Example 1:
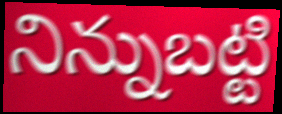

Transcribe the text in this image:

నిన్నుబట్టి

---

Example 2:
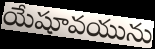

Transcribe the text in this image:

యేషూవయును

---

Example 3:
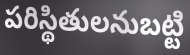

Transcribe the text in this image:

పరిస్థితులనుబట్టి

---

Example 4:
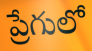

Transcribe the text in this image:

ప్రేగులో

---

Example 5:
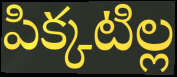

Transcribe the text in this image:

పిక్కటిల్ల